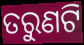
ତରୁଣଟି